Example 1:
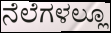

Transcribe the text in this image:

ನೆಲೆಗಳಲ್ಲೂ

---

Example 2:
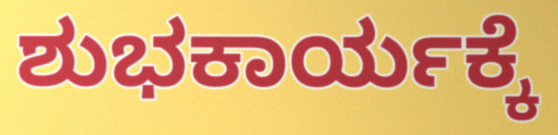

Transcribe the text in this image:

ಶುಭಕಾರ್ಯಕ್ಕೆ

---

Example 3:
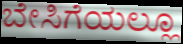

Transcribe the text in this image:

ಬೇಸಿಗೆಯಲ್ಲೂ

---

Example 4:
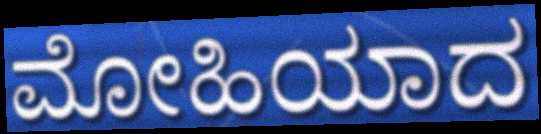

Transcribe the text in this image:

ಮೋಹಿಯಾದ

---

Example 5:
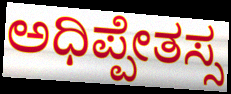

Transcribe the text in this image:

ಅಧಿಪ್ಪೇತಸ್ಸ